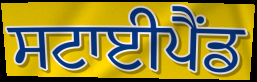
ਸਟਾਈਪੈਂਡ